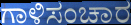
ಗಾಳಿಸಂಚಾರ